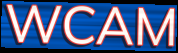
WCAM